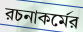
রচনাকর্মের